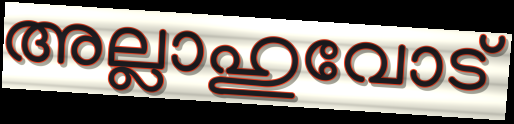
അല്ലാഹുവോട്